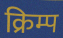
क्रिम्प